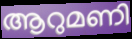
ആറുമണി